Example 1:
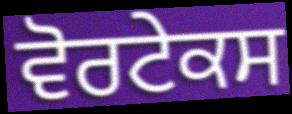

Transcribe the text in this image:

ਵੋਰਟੇਕਸ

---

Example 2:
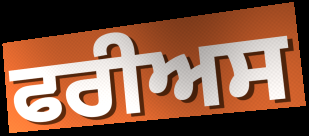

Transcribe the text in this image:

ਫਰੀਅਸ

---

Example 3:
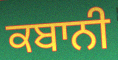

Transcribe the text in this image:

ਕਬਾਨੀ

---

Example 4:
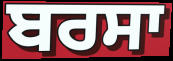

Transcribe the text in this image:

ਬਰਸਾ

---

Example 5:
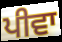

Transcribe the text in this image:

ਪੀਵਾ